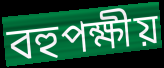
বহুপক্ষীয়